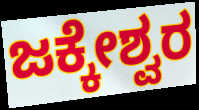
ಜಕ್ಕೇಶ್ವರ